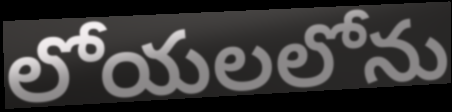
లోయలలోను